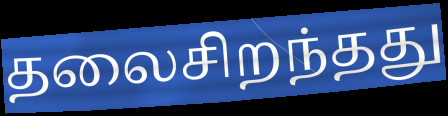
தலைசிறந்தது